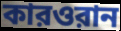
কারওরান